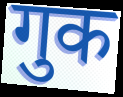
गुक